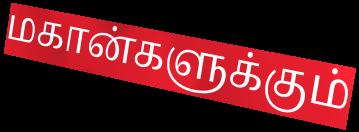
மகான்களுக்கும்